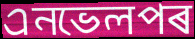
এনভেলপৰ